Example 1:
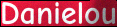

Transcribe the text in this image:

Danielou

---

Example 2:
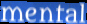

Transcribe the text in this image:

mental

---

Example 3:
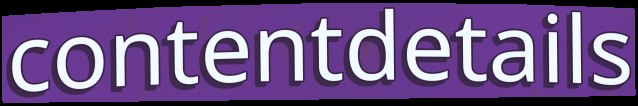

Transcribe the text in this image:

contentdetails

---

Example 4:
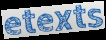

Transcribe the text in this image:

etexts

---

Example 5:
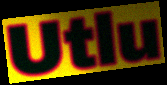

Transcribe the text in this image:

Utlu